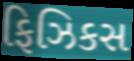
ફિઝિકસ